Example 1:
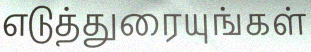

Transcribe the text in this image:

எடுத்துரையுங்கள்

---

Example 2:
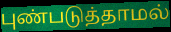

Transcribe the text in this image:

புண்படுத்தாமல்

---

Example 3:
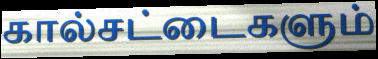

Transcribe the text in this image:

கால்சட்டைகளும்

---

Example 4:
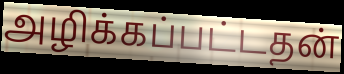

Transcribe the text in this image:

அழிக்கப்பட்டதன்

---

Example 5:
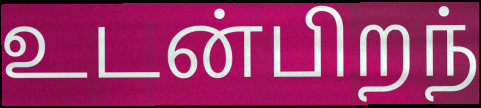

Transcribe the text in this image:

உடன்பிறந்